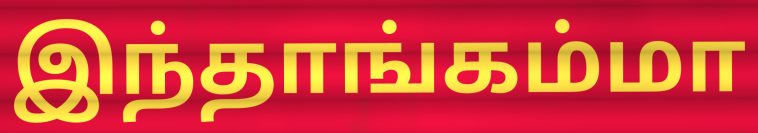
இந்தாங்கம்மா